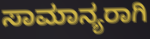
ಸಾಮಾನ್ಯರಾಗಿ